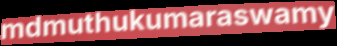
mdmuthukumaraswamy